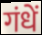
गंधें